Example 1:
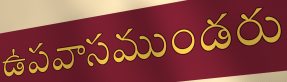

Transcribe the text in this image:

ఉపవాసముండరు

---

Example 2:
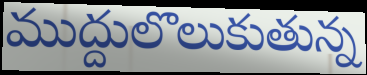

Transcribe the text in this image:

ముద్దులొలుకుతున్న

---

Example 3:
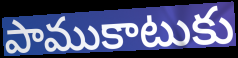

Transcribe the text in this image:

పాముకాటుకు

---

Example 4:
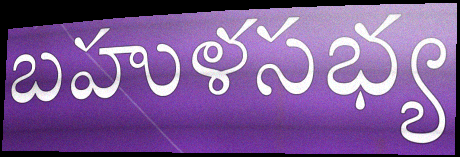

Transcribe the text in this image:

బహుళసభ్య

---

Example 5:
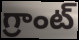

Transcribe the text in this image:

గ్రాంట్